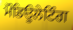
ਮੌਡਿਊਲੇਟਿੰਗ